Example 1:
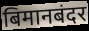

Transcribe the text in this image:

बिमानबंदर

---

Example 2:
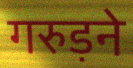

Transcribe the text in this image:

गरुड़ने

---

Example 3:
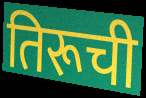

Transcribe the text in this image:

तिरूची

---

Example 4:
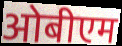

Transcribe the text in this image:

ओबीएम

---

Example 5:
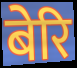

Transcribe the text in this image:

बेरि